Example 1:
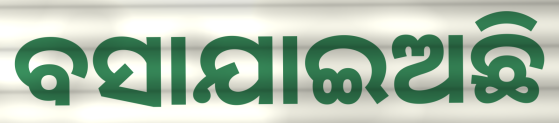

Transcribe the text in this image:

ବସାଯାଇଅଛି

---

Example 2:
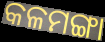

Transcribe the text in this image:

କଳମଙ୍ଗା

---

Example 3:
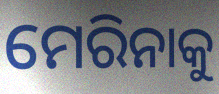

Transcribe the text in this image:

ମେରିନାକୁ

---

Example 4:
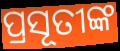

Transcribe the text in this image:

ପ୍ରସୂତୀଙ୍କ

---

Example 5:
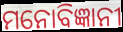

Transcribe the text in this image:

ମନୋବିଜ୍ଞାନୀ